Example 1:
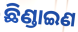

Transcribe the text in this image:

ଛିଣ୍ଡାଇଣ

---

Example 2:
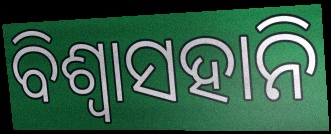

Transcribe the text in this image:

ବିଶ୍ବାସହାନି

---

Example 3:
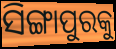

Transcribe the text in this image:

ସିଙ୍ଗାପୁରକୁ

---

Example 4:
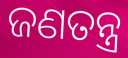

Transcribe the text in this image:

ଜଣତନ୍ତ୍ର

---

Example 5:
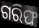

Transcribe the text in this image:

ଗରିଫ